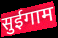
सुईगाम